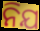
ନିଯ